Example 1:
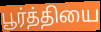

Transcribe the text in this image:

பூர்த்தியை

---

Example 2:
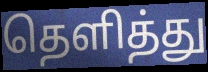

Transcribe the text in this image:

தெளித்து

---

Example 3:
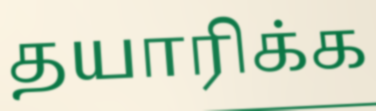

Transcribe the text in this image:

தயாரிக்க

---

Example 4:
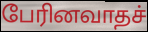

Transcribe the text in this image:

பேரினவாதச்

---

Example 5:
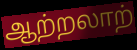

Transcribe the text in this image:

ஆற்றலாற்